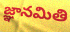
జ్ఞానమితి